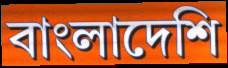
বাংলাদেশি